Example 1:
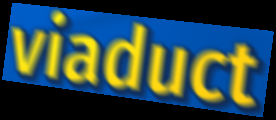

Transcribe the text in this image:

viaduct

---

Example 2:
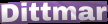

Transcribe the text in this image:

Dittmar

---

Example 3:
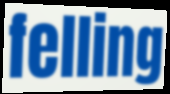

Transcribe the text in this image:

felling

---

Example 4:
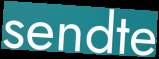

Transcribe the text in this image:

sendte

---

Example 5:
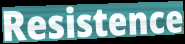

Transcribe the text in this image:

Resistence